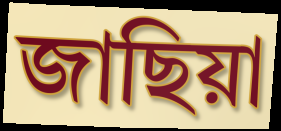
জাছিয়া